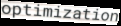
optimization